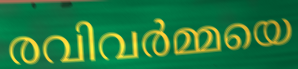
രവിവർമ്മയെ